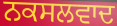
ਨਕਸਲਵਾਦ